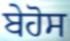
ਬੇਹੋਸ